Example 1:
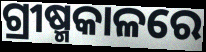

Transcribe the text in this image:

ଗ୍ରୀଷ୍ମକାଳରେ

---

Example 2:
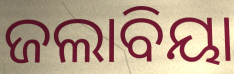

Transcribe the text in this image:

ଜଲାବିୟା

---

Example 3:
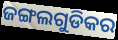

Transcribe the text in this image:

ଜଙ୍ଗଲଗୁଡିକର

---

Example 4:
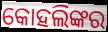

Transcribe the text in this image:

କୋହଲିଙ୍କର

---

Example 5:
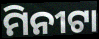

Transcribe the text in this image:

ମିନୀଟା